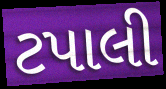
ટપાલી